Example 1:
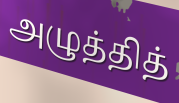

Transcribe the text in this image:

அழுத்தித்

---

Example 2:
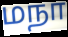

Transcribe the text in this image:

மநா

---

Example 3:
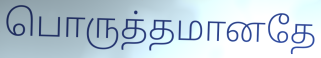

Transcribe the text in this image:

பொருத்தமானதே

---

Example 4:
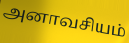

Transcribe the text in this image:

அனாவசியம்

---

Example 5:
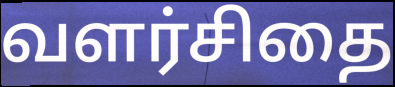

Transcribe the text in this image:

வளர்சிதை